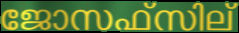
ജോസഫ്സില്